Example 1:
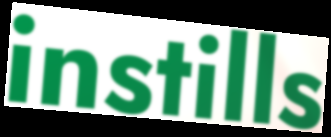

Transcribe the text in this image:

instills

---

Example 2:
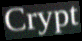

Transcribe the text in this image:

Crypt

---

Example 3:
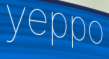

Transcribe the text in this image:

yeppo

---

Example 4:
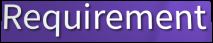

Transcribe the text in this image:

Requirement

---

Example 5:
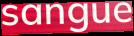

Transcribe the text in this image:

sangue